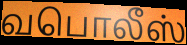
வபொலீஸ்